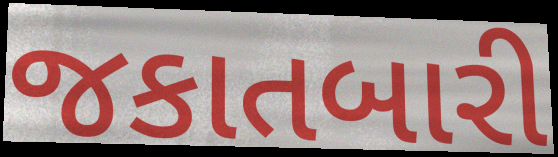
જકાતબારી